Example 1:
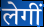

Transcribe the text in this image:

लेगीं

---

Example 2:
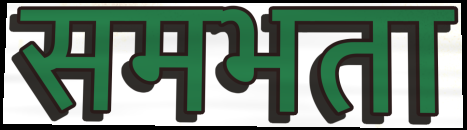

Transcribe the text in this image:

समभता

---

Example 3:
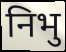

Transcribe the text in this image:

निभु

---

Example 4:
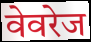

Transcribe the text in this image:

वेवरेज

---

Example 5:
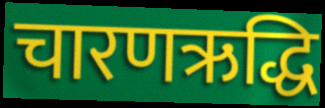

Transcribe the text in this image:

चारणऋद्धि